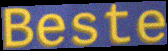
Beste